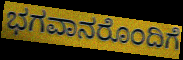
ಭಗವಾನರೊಂದಿಗೆ